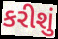
કરીશું